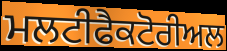
ਮਲਟੀਫੈਕਟੋਰੀਅਲ